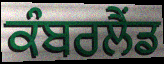
ਕੰਬਰਲੈਂਡ